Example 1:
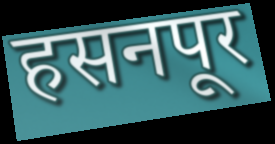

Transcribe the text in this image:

हसनपूर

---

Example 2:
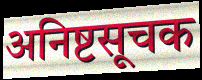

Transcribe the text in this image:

अनिष्टसूचक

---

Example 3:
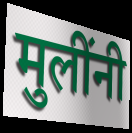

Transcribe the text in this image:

मुलींनी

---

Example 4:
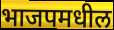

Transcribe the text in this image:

भाजपमधील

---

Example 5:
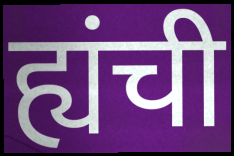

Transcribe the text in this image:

ह्यंची